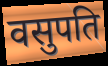
वसुपति